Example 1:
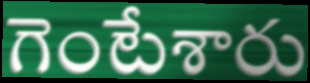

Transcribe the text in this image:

గెంటేశారు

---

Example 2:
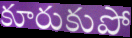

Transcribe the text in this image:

కూరుకుపో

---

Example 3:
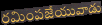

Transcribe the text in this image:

రమింపజేయువాడు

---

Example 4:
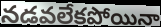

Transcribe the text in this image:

నడవలేకపోయినా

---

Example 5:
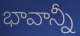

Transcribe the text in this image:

భావాన్నీ